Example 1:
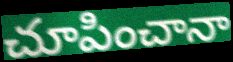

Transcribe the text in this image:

చూపించానా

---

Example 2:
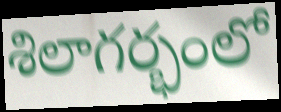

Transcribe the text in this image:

శిలాగర్భంలో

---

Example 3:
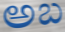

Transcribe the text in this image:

అబ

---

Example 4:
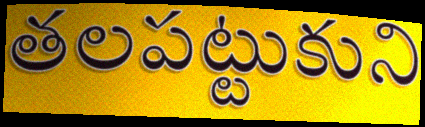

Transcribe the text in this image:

తలపట్టుకుని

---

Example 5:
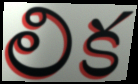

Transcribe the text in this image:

లిక